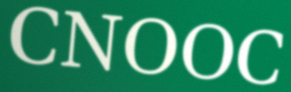
CNOOC